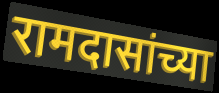
रामदासांच्या